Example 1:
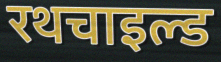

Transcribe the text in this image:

रथचाइल्ड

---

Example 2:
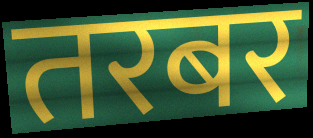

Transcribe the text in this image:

तरबर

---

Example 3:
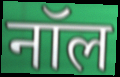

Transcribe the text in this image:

नॉल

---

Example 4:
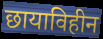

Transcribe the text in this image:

छायाविहीन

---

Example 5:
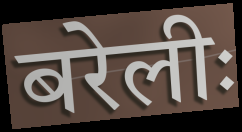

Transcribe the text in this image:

बरेलीः